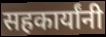
सहकार्यांनी